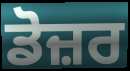
ਡੋਜ਼ਰ